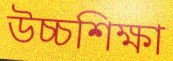
উচ্চশিক্ষা